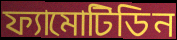
ফ্যামোটিডিন